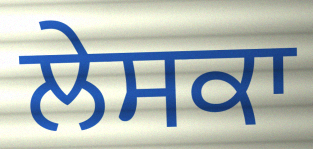
ਲੇਸਕਾ